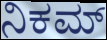
ನಿಕಮ್